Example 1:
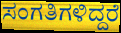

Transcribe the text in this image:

ಸಂಗತಿಗಳಿದ್ದರೆ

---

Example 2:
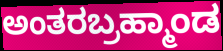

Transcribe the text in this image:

ಅಂತರಬ್ರಹ್ಮಾಂಡ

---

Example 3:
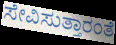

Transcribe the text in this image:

ಸೇವಿಸುತ್ತಾರಂತೆ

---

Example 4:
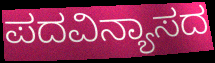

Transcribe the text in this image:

ಪದವಿನ್ಯಾಸದ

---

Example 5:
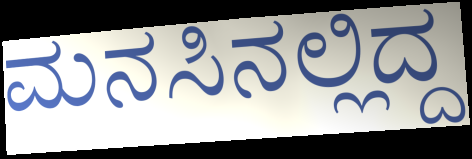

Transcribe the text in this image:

ಮನಸಿನಲ್ಲಿದ್ದ